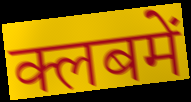
क्लबमें